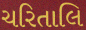
ચરિતાલિ